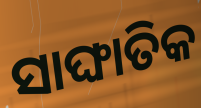
ସାଙ୍ଘାତିକ